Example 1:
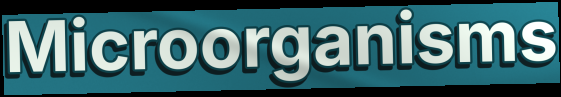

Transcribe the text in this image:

Microorganisms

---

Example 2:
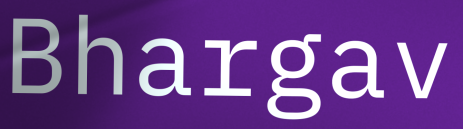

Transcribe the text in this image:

Bhargav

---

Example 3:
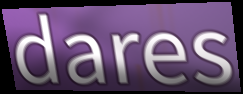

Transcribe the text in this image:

dares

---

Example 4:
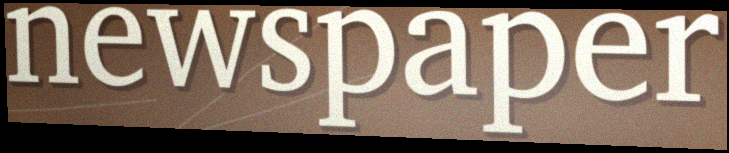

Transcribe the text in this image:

newspaper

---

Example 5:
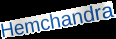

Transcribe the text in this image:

Hemchandra